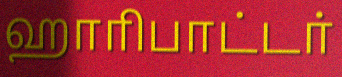
ஹாரிபாட்டர்